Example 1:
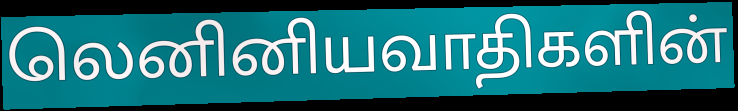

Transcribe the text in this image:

லெனினியவாதிகளின்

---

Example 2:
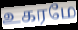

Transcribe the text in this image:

உகரமே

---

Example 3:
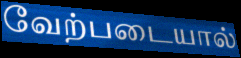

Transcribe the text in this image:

வேற்படையால்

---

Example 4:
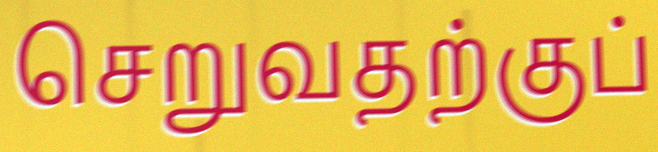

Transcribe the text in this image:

செறுவதற்குப்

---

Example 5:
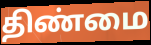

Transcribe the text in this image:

திண்மை